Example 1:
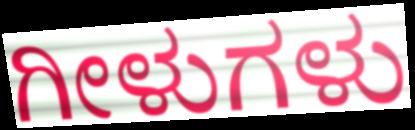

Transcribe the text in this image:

ಗೀಳುಗಳು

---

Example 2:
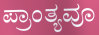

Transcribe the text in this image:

ಪ್ರಾಂತ್ಯವೂ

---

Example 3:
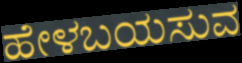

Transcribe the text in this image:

ಹೇಳಬಯಸುವ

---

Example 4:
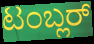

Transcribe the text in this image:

ಟಂಬ್ಲರ್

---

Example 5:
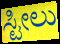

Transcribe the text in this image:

ಸ್ಟೀಲು